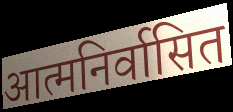
आत्मनिर्वासित